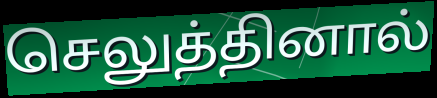
செலுத்தினால்